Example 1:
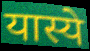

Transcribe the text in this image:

यास्ये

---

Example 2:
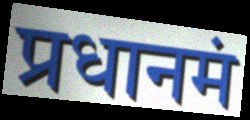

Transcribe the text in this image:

प्रधानमं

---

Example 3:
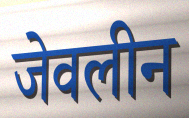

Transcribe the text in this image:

जेवलीन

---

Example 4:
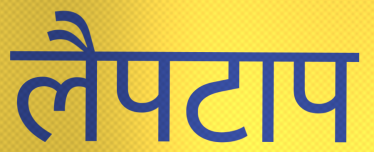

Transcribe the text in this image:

लैपटाप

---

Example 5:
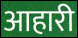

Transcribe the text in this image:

आहारी